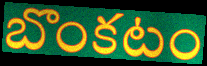
బొంకటం